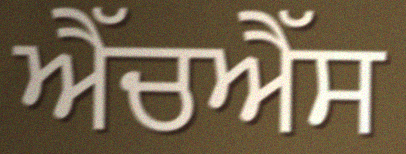
ਐੱਚਐੱਸ